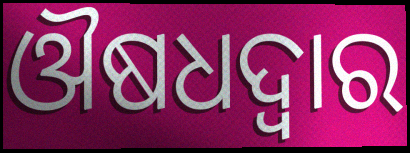
ଔଷଧଦ୍ୱାର